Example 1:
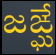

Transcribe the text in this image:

జఙ్ఘే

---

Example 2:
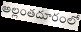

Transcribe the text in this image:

అల్లంతదూరంలో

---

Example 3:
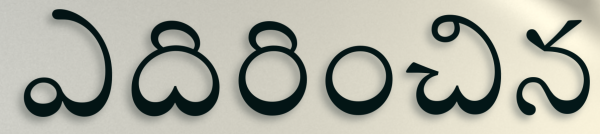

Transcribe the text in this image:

ఎదిరించిన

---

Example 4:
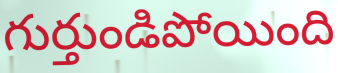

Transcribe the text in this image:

గుర్తుండిపోయింది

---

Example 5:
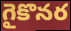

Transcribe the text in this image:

గైకొనర